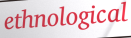
ethnological